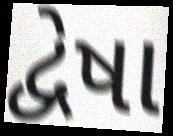
દ્વેષા